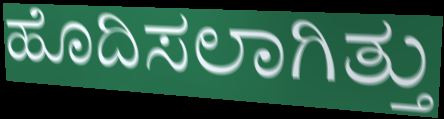
ಹೊದಿಸಲಾಗಿತ್ತು